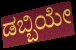
ಡಬ್ಬಿಯೇ